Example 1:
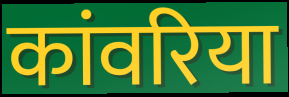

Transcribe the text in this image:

कांवरिया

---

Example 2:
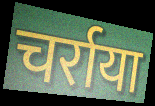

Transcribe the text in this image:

चर्राया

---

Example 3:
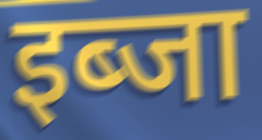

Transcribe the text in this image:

इब्जा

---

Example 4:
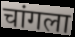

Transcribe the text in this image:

चांगला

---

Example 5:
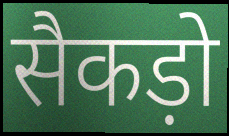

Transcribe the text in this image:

सैकड़ो